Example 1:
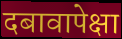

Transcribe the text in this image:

दबावापेक्षा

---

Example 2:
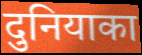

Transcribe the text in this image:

दुनियाका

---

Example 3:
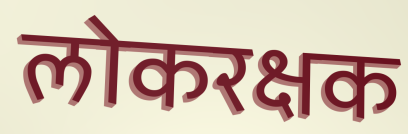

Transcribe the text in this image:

लोकरक्षक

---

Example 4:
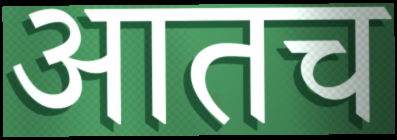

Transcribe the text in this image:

आतच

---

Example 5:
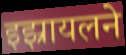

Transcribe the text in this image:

इझ्रायलने